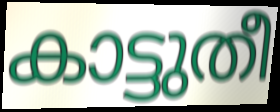
കാട്ടുതീ